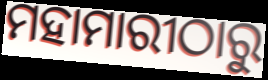
ମହାମାରୀଠାରୁ